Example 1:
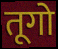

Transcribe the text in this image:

तूगो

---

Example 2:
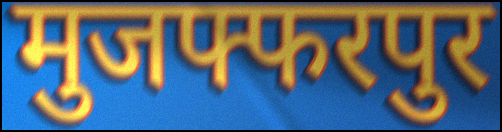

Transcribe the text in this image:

मुजफ्फरपुर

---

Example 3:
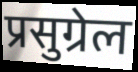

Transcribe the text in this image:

प्रसुग्रेल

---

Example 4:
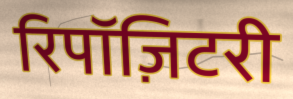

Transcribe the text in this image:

रिपॉज़िटरी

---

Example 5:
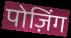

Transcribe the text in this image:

पोज़िंग